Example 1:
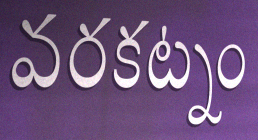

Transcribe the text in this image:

వరకట్నం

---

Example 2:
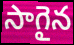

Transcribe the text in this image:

సాగైన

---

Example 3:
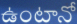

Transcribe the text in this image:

ఉంటానో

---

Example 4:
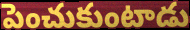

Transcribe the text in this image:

పెంచుకుంటాడు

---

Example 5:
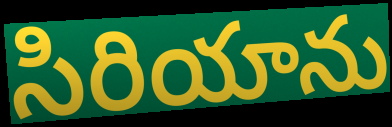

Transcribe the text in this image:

సిరియాను